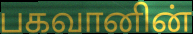
பகவானின்